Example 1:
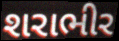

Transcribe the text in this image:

શરાભીર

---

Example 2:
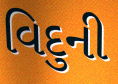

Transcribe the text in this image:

વિદુની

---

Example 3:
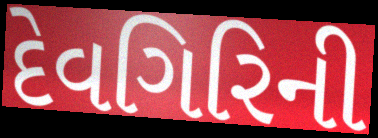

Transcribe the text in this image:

દેવગિરિની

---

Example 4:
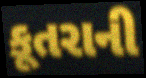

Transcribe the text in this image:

કૂતરાની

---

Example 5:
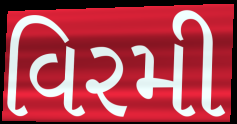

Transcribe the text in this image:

વિરમી